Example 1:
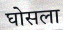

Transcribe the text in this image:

घोसला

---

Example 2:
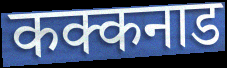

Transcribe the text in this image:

कक्कनाड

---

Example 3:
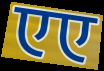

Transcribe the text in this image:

एए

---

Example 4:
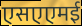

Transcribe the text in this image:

एसएएमई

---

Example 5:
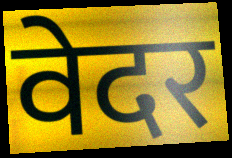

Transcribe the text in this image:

वेदर